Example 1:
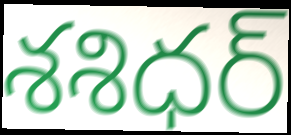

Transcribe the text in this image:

శశిధర్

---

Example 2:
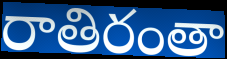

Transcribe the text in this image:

రాతిరంతా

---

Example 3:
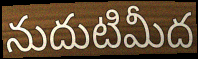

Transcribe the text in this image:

నుదుటిమీద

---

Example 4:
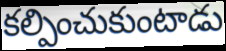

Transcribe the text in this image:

కల్పించుకుంటాడు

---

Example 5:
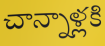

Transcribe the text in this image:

చాన్నాళ్లకి